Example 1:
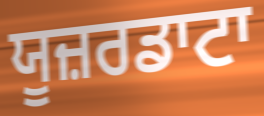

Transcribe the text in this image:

ਯੂਜ਼ਰਡਾਟਾ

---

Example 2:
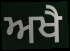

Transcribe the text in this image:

ਅਖੈ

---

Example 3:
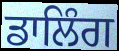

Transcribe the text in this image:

ਡਾਲਿੰਗ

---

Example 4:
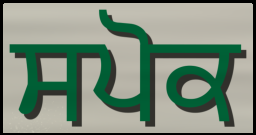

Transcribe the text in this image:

ਸਪੋਕ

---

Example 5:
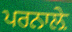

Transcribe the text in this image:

ਪਰਨਾਲ਼ੇ